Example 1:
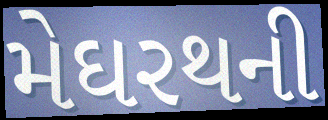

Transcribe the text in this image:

મેઘરથની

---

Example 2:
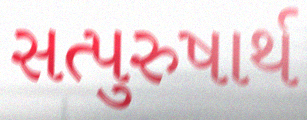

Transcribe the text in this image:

સત્પુરુષાર્થ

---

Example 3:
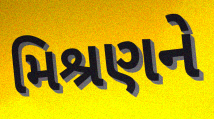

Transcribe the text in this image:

મિશ્રણને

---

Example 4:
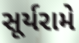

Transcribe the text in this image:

સૂર્યરામે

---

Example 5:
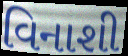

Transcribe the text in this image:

વિનાશી